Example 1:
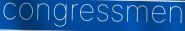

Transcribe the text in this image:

congressmen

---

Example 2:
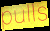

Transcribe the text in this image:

pulls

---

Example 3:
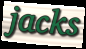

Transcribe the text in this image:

jacks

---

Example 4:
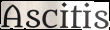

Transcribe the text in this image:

Ascitis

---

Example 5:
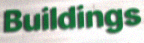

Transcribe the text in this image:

Buildings